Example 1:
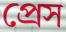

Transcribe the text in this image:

প্রেস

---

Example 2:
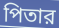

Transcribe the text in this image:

পিতার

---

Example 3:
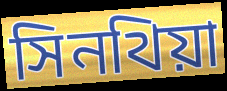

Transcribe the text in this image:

সিনথিয়া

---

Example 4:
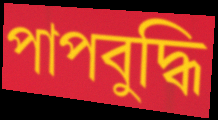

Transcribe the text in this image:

পাপবুদ্ধি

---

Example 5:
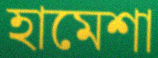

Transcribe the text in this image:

হামেশা